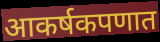
आकर्षकपणात